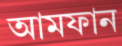
আমফান